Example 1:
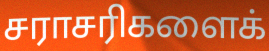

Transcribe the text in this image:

சராசரிகளைக்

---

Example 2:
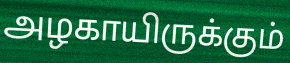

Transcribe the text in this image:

அழகாயிருக்கும்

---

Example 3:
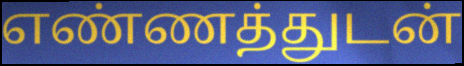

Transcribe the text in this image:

எண்ணத்துடன்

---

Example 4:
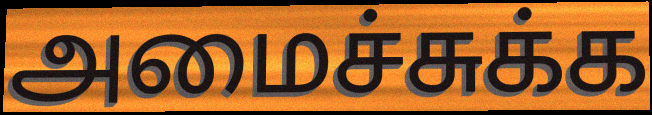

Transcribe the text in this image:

அமைச்சுக்க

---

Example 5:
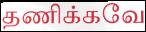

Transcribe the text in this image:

தணிக்கவே